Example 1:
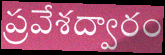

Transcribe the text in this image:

ప్రవేశద్వారం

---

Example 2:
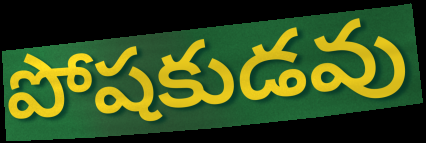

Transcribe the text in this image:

పోషకుడవు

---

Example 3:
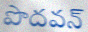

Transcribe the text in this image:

పొదవన్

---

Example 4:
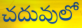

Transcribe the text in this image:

చదువులో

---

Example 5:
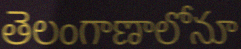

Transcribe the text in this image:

తెలంగాణాలోనూ